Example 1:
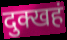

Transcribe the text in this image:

दुक्खहं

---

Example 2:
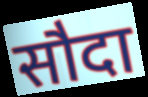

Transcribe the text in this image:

सौदा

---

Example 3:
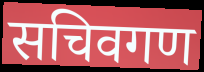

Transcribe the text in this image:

सचिवगण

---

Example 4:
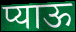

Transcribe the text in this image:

प्याऊ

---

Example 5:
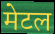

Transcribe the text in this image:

मेटल